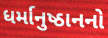
ધર્માનુષ્ઠાનનો